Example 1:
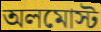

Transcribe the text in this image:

অলমোস্ট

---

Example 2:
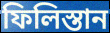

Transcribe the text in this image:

ফিলিস্তান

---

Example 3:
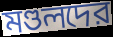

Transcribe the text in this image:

মণ্ডলদের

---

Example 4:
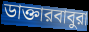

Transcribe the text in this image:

ডাক্তারবাবুরা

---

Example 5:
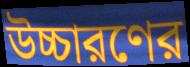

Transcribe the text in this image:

উচ্চারণের